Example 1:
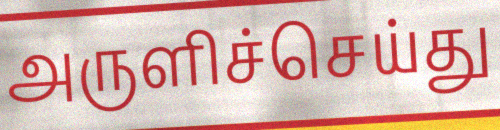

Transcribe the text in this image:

அருளிச்செய்து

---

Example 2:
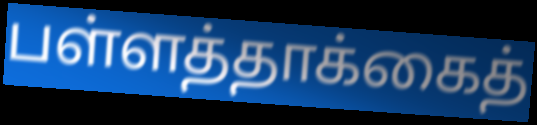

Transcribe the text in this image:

பள்ளத்தாக்கைத்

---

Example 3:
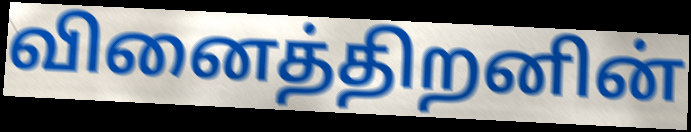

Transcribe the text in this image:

வினைத்திறனின்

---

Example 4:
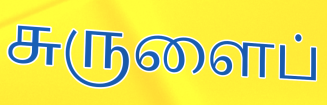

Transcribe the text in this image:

சுருளைப்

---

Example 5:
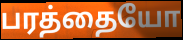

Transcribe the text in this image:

பரத்தையோ